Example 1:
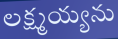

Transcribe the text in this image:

లక్ష్మయ్యను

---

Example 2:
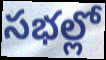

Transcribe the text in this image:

సభల్లో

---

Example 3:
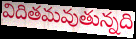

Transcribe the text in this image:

విదితమవుతున్నది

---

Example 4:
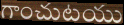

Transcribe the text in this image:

గాంచుటయు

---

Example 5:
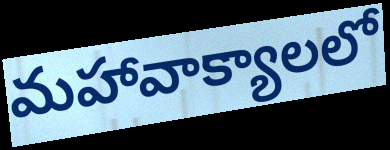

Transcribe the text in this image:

మహావాక్యాలలో